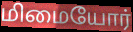
மிமையோர்